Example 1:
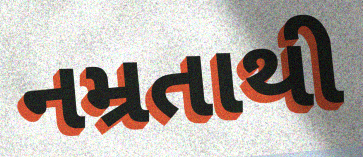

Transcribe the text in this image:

નમ્રતાથી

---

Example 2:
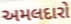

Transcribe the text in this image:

અમલદારો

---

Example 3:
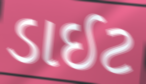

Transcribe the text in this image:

ડાઈટ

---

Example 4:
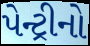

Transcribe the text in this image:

પેન્ટ્રીનો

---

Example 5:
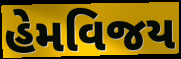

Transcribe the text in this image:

હેમવિજય